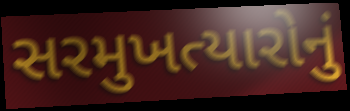
સરમુખત્યારોનું